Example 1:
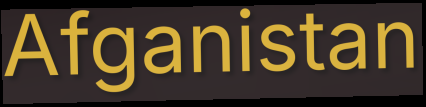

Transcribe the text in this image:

Afganistan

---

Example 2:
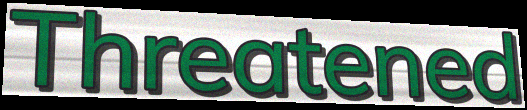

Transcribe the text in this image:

Threatened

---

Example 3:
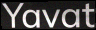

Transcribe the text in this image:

Yavat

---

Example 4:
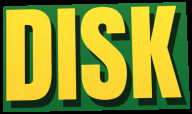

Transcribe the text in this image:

DISK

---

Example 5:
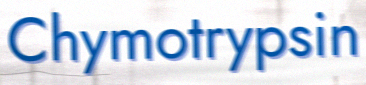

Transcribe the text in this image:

Chymotrypsin